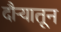
दौर्‍यातून